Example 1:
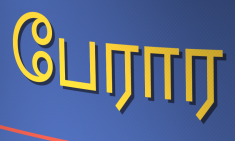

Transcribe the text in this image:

பேரார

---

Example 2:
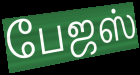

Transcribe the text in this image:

பேஜஸ்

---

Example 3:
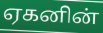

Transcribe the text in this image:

ஏகனின்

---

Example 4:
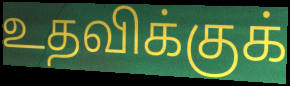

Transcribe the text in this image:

உதவிக்குக்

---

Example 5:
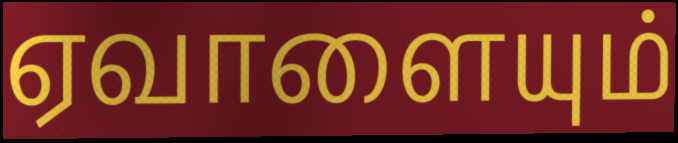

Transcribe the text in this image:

ஏவாளையும்